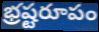
భ్రష్టరూపం